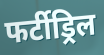
फर्टीड्रिल